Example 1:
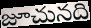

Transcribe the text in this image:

జూచునది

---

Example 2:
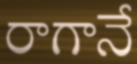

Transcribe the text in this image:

రాగానే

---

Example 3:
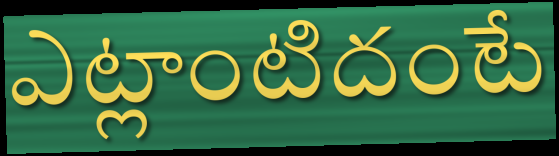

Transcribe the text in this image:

ఎట్లాంటిదంటే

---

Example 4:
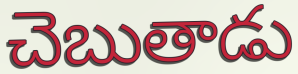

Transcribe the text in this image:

చెబుతాడు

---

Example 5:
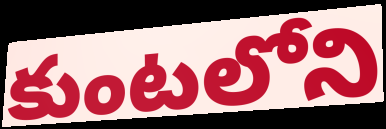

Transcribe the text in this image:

కుంటలోని